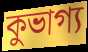
কুভাগ্য